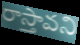
రాస్తావని